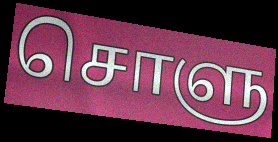
சொளு